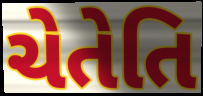
ચેતેતિ